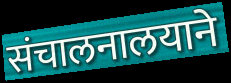
संचालनालयाने